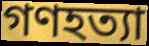
গণহত্যা